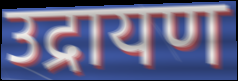
उद्रायण